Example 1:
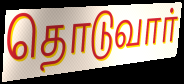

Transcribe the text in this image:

தொடுவார்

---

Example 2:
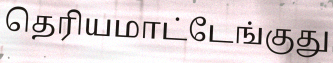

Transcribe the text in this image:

தெரியமாட்டேங்குது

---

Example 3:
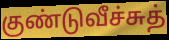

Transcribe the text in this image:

குண்டுவீச்சுத்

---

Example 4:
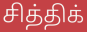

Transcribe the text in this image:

சித்திக்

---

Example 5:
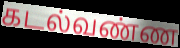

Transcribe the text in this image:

கடல்வண்ண